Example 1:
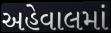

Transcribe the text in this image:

અહેવાલમાં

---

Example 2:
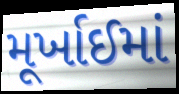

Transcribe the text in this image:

મૂર્ખાઈમાં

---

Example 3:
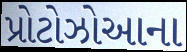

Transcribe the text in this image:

પ્રોટોઝોઆના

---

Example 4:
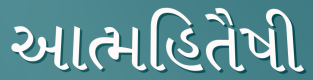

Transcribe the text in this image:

આત્મહિતૈષી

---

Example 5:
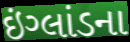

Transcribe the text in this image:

ઇંગ્લાંડના